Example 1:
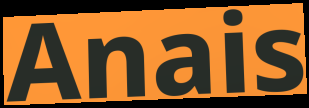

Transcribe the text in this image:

Anais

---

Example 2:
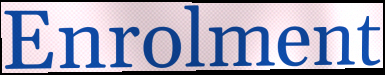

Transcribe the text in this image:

Enrolment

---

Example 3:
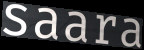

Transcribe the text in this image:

saara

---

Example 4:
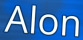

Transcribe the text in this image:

Alon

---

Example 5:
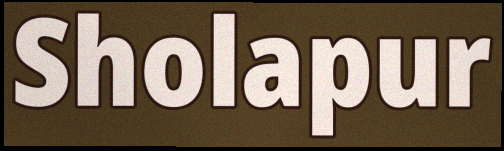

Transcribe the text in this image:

Sholapur